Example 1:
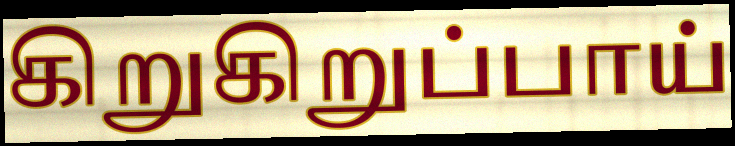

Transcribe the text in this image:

கிறுகிறுப்பாய்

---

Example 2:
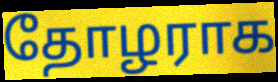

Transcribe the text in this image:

தோழராக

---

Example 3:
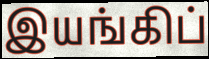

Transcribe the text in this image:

இயங்கிப்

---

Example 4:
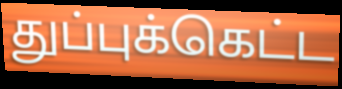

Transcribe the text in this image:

துப்புக்கெட்ட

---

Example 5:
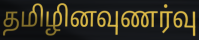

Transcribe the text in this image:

தமிழினவுணர்வு